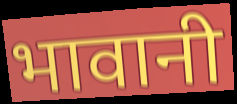
भावानी